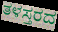
ತಳಸ್ತರದ